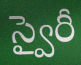
స్వైరీ